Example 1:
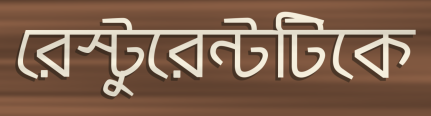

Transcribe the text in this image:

রেস্টুরেন্টটিকে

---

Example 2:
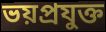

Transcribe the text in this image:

ভয়প্রযুক্ত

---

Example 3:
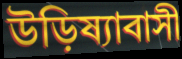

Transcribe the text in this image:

উড়িষ্যাবাসী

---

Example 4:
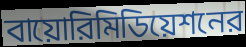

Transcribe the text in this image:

বায়োরিমিডিয়েশনের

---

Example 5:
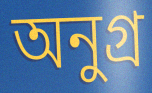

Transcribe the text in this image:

অনুগ্র